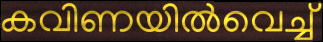
കവിണയിൽവെച്ച്